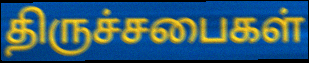
திருச்சபைகள்